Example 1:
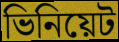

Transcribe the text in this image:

ভিনিয়েট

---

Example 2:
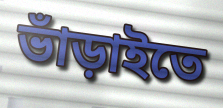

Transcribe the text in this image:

ভাঁড়াইতে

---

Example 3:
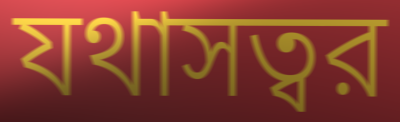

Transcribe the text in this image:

যথাসত্বর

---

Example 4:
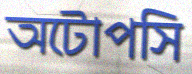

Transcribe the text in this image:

অটোপসি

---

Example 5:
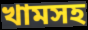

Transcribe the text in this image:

খামসহ